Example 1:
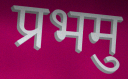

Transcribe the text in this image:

प्रभमु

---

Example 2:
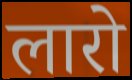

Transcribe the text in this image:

लारो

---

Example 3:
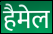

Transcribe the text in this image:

हैमेल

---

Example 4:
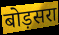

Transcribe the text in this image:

बोड़सरा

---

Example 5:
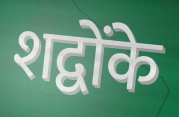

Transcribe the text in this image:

शद्वोंके